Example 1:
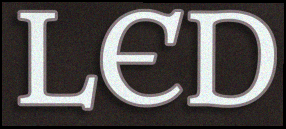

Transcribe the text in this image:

LED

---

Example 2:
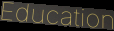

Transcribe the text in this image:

Education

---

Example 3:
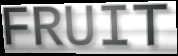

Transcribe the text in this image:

FRUIT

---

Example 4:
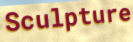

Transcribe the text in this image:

Sculpture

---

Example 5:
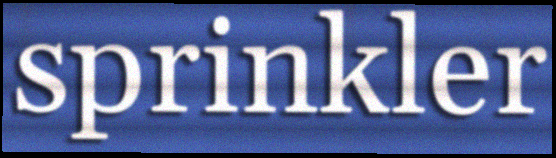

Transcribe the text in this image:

sprinkler